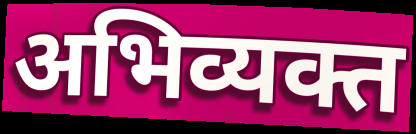
अभिव्यक्त